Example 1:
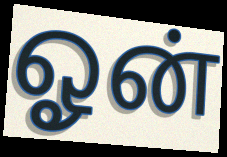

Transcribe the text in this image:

ஓன்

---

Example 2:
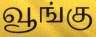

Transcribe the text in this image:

வூங்கு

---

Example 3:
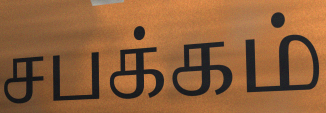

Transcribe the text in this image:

சபக்கம்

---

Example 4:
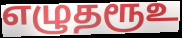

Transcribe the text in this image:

எழுதரூஉ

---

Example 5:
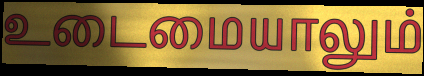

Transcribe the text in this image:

உடைமையாலும்